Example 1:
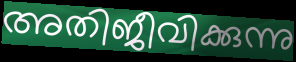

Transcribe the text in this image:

അതിജീവിക്കുന്നു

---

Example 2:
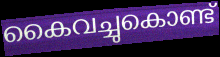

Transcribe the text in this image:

കൈവച്ചുകൊണ്ട്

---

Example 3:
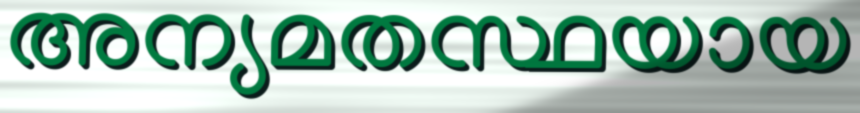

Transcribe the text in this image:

അന്യമതസ്ഥയായ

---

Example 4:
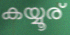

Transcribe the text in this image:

കയ്യൂര്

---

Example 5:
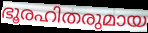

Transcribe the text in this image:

ഭൂരഹിതരുമായ